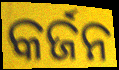
କର୍ଜନ